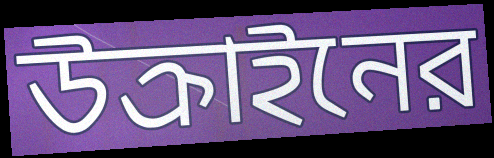
উক্রাইনের